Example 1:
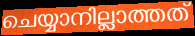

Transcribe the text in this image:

ചെയ്യാനില്ലാത്തത്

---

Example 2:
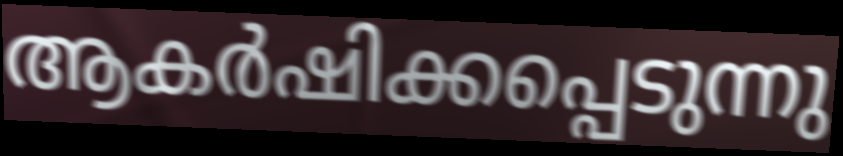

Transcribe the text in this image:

ആകർഷിക്കപ്പെടുന്നു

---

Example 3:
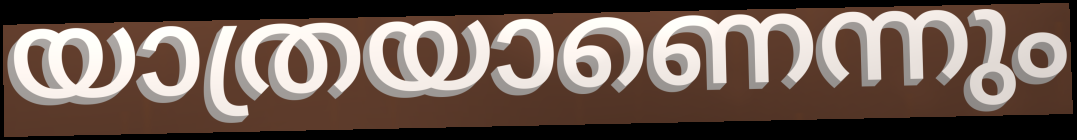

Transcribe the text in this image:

യാത്രയാണെന്നും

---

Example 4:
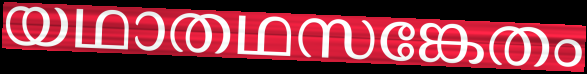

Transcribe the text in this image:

യഥാതഥസങ്കേതം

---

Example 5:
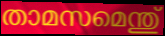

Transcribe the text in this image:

താമസമെന്തു്